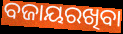
ବଜାୟରଖିବା